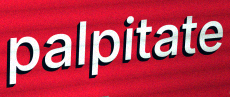
palpitate